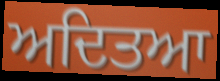
ਅਦਿਤਆ